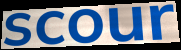
scour